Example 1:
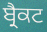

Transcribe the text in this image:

ਬ੍ਰੈਕਟ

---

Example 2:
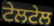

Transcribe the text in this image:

ਟੇਲਟੇਲ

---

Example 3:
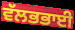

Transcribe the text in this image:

ਵੱਲਭਭਾਈ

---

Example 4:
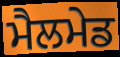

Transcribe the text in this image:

ਮੈਲਮੇਡ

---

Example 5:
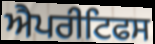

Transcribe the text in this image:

ਐਪਰੀਟਿਫਸ